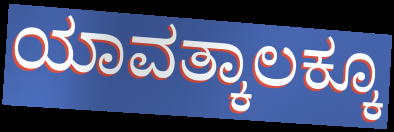
ಯಾವತ್ಕಾಲಕ್ಕೂ